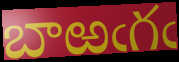
బాఱఁగఁ